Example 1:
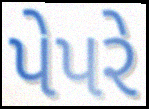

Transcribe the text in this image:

પેપરે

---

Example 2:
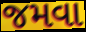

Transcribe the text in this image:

જમવા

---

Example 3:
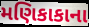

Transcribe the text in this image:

મણિકાકાના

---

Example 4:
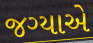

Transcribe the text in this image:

જગ્યાએ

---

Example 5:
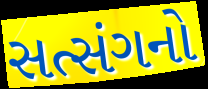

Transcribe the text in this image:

સત્સંગનો